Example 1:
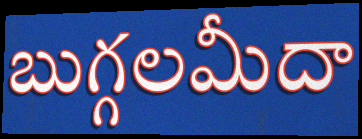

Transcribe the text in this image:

బుగ్గలమీదా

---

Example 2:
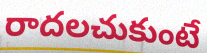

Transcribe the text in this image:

రాదలచుకుంటే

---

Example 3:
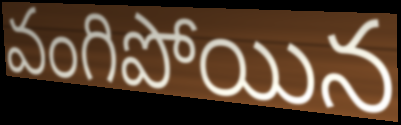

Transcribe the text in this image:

వంగిపోయిన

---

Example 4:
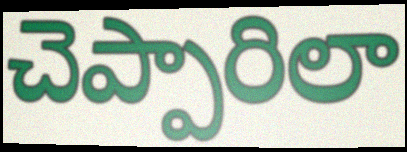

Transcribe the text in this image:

చెప్పారిలా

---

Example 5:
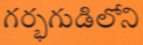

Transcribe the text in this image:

గర్భగుడిలోని